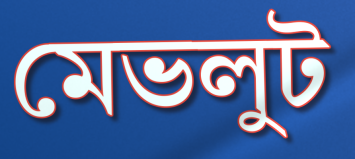
মেভলুট